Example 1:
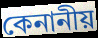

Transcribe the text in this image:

কেনানীয়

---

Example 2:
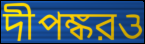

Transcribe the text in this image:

দীপঙ্করও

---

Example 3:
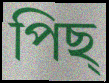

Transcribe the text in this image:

পিছ্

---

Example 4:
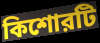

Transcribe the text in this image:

কিশোরটি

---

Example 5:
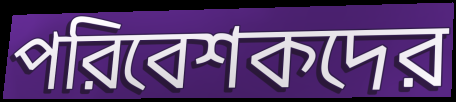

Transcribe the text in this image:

পরিবেশকদের